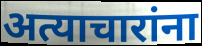
अत्याचारांना